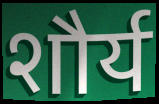
शौर्य